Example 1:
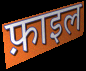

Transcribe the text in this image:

फ़ाइल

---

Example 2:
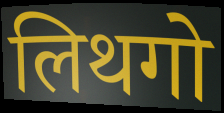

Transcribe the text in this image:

लिथगो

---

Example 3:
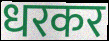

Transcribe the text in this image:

धरकर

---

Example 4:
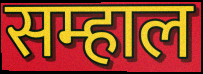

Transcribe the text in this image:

सम्हाल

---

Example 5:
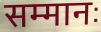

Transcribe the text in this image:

सम्मानः